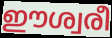
ഈശ്വരീ